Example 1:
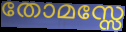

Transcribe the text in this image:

തോമസ്സേ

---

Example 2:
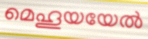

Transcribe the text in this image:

മെഹൂയയേൽ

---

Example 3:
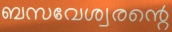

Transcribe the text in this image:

ബസവേശ്വരന്റെ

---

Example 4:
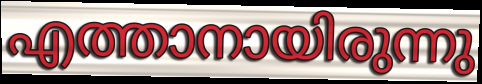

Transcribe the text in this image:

എത്താനായിരുന്നു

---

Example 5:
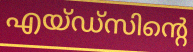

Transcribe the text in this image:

എയ്ഡ്സിന്റെ